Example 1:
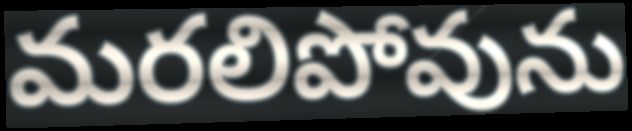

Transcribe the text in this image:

మరలిపోవును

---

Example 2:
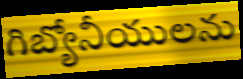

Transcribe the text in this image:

గిబ్యోనీయులను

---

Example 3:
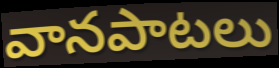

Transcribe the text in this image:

వానపాటలు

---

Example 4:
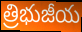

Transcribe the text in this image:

త్రిభుజీయ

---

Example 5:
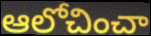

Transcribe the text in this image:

ఆలోచించా